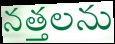
నత్తలను